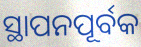
ସ୍ଥାପନପୂର୍ବକ